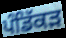
ਪੰਡਿੱਕੜ